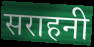
सराहनी